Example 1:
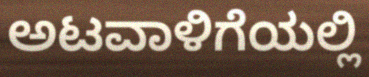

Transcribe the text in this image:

ಅಟವಾಳಿಗೆಯಲ್ಲಿ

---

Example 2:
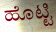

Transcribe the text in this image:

ಹೊಟ್ಟಿ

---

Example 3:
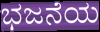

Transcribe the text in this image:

ಭಜನೆಯ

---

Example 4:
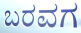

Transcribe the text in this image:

ಬರವಗ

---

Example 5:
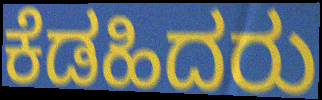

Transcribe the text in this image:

ಕೆಡಹಿದರು